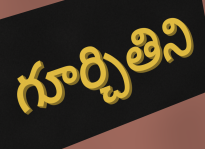
గూర్చితిని